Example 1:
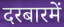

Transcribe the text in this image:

दरबारमें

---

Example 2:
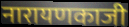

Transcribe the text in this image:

नारायणकाजी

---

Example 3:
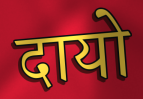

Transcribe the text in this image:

दायो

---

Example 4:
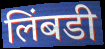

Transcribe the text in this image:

लिंबडी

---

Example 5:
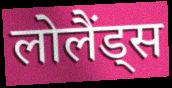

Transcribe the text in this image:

लोलैंड्स